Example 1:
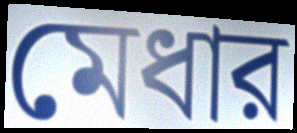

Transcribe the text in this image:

মেধার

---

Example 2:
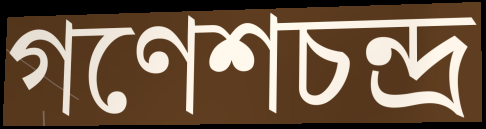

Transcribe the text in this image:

গণেশচন্দ্র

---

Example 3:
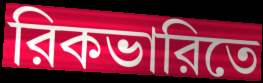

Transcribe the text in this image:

রিকভারিতে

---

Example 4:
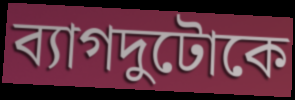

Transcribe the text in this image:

ব্যাগদুটোকে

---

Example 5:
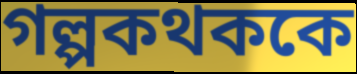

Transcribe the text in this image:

গল্পকথককে